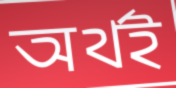
অৰ্থই